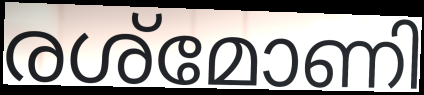
രശ്മോണി